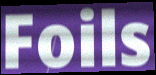
Foils